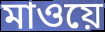
মাওয়ে